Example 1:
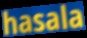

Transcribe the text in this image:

hasala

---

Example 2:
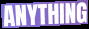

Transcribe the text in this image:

ANYTHING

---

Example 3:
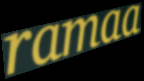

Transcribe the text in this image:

ramaa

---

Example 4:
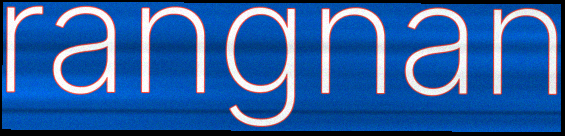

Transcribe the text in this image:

rangnan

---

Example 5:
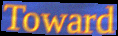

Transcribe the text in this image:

Toward